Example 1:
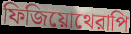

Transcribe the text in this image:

ফিজিয়োথেরাপি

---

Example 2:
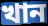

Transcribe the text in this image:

খান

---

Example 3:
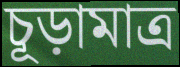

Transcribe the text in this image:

চূড়ামাত্র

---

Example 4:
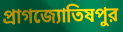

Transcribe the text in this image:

প্রাগজ্যোতিষপুর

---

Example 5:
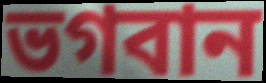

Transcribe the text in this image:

ভগবান